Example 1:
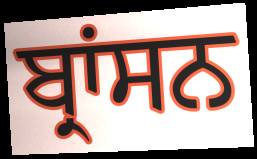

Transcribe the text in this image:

ਬ੍ਰਾਂਸਨ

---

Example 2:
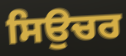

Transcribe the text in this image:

ਸਿਉਚਰ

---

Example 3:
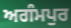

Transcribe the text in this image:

ਅਗੰਮਪੁਰ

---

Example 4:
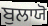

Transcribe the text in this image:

ਬੁਲਾਯੋ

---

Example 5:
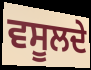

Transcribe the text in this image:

ਵਸੂਲਦੇ